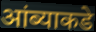
आंब्याकडे